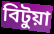
বিটুয়া